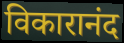
विकारानंद